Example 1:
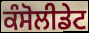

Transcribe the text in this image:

ਕੰਸੋਲੀਡੇਟ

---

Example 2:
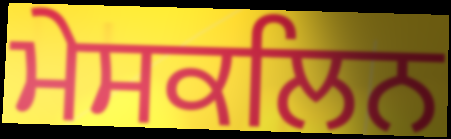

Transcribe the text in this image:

ਮੇਸਕਲਿਨ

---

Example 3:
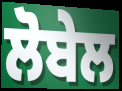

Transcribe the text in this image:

ਲੋਬੇਲ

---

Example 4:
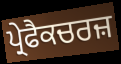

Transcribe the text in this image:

ਪ੍ਰੇਫੈਕਚਰਜ਼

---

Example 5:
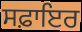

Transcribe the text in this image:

ਸਫ਼ਾਇਰ